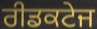
ਰੀਡਕਟੇਜ